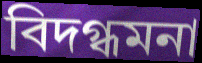
বিদগ্ধমনা